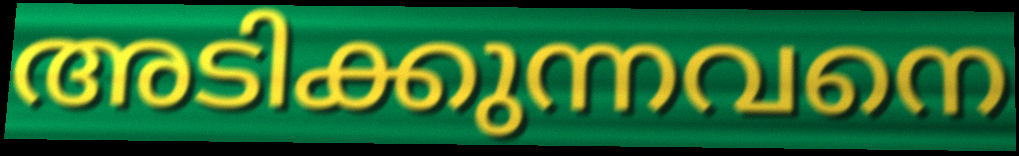
അടിക്കുന്നവനെ